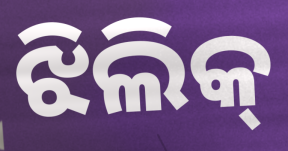
ଝିଲିକ୍